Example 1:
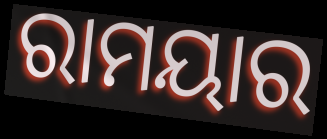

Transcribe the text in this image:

ରାମୟାର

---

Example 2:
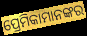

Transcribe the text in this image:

ପ୍ରେମିକାମାନଙ୍କର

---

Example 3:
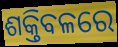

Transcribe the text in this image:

ଶକ୍ତିବଳରେ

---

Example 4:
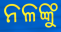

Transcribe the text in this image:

ନଳଙ୍କୁ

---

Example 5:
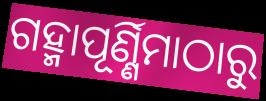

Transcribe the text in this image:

ଗହ୍ମାପୂର୍ଣ୍ଣିମାଠାରୁ